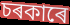
চৰকাৰে